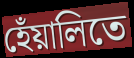
হেঁয়ালিতে